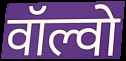
वॉल्‍वो